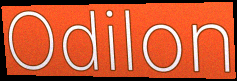
Odilon